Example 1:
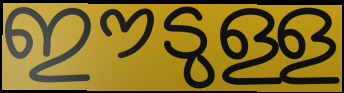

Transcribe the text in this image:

ഈടുള്ള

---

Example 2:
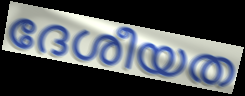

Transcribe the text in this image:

ദേശീയത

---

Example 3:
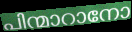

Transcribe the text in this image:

പിന്മാറാനോ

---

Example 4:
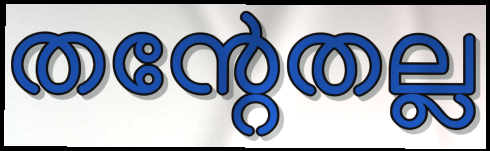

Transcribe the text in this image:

തന്റേതല്ല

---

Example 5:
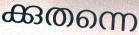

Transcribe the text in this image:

ക്കുതന്നെ